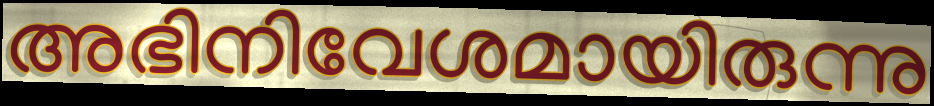
അഭിനിവേശമായിരുന്നു